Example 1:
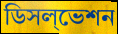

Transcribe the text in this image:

ডিসল্ভেশন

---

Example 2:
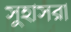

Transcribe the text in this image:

সুহাসরা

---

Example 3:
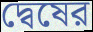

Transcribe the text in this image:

দ্বেষের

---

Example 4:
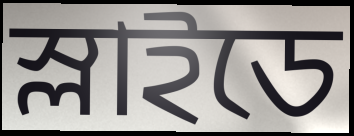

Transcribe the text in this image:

স্লাইডে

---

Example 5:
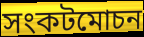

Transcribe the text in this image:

সংকটমোচন